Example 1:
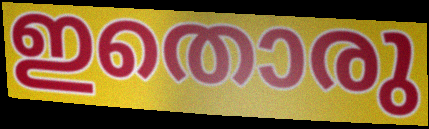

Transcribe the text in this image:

ഇതൊരു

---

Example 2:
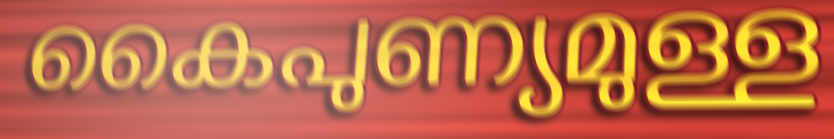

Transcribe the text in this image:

കൈപുണ്യമുള്ള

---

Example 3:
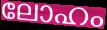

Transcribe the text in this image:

ലോഹം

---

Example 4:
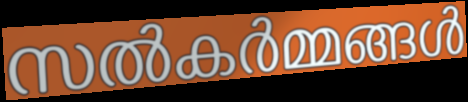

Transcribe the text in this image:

സൽകർമ്മങ്ങൾ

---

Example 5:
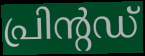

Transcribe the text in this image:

പ്രിന്റഡ്